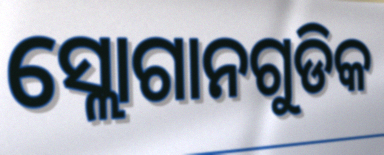
ସ୍ଲୋଗାନଗୁଡିକ